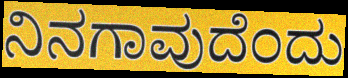
ನಿನಗಾವುದೆಂದು